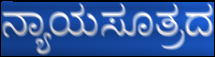
ನ್ಯಾಯಸೂತ್ರದ